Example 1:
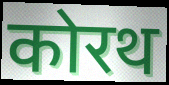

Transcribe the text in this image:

कोरथ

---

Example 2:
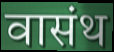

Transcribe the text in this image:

वासंथ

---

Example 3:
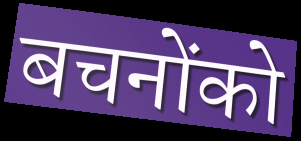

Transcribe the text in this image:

बचनोंको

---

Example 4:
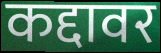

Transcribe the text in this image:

कद्दावर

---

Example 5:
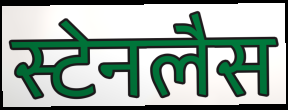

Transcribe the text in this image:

स्टेनलैस